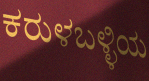
ಕರುಳಬಳ್ಳಿಯ